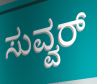
ಸುವ್ವರ್